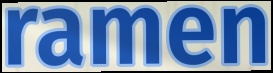
ramen